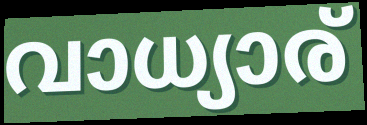
വാധ്യാര്